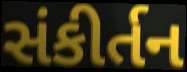
સંકીર્તન